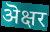
ऄक्षर